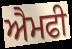
ਐਮਫੀ